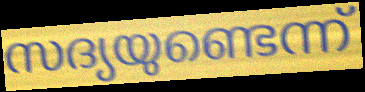
സദ്യയുണ്ടെന്ന്